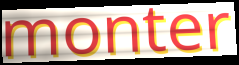
monter